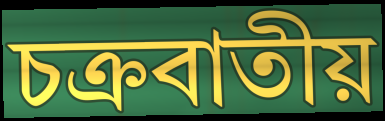
চক্রবাতীয়